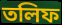
তলিফ